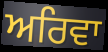
ਅਰਿਵਾ